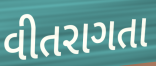
વીતરાગતા